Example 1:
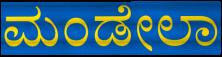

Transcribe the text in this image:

ಮಂಡೇಲಾ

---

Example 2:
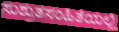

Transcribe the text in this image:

ಸುಶ್ರುತಸಂಹಿತೆಯಲ್ಲಿ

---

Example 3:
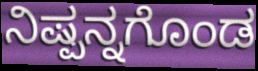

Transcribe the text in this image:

ನಿಷ್ಪನ್ನಗೊಂಡ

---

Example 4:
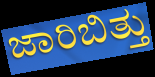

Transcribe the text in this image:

ಜಾರಿಬಿತ್ತು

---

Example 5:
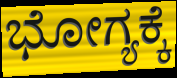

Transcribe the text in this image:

ಭೋಗ್ಯಕ್ಕೆ